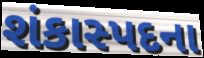
શંકાસ્પદના